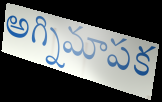
అగ్నిమాపక